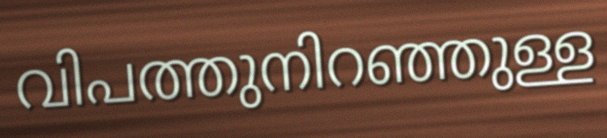
വിപത്തുനിറഞ്ഞുള്ള